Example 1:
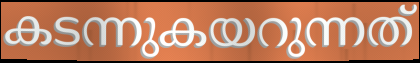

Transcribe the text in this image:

കടന്നുകയറുന്നത്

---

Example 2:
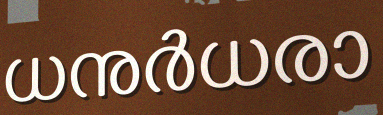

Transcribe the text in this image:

ധനുർധരാ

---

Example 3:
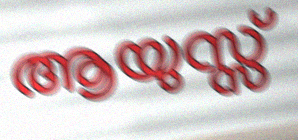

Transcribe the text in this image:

ആയുസ്സ്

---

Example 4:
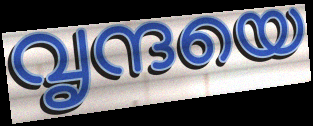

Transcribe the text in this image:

വൃന്ദയെ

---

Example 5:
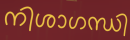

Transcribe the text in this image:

നിശാഗന്ധി